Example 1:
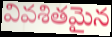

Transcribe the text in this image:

వివశితమైన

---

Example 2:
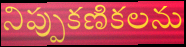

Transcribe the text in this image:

నిప్పుకణికలను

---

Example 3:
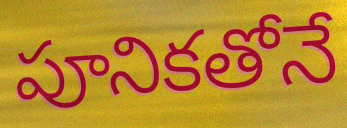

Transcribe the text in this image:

పూనికతోనే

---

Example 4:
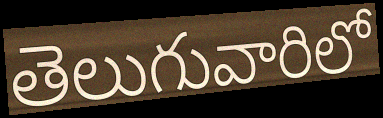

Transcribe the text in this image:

తెలుగువారిలో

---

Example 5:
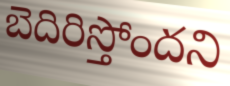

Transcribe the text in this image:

బెదిరిస్తోందని